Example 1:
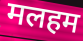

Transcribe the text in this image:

मलहम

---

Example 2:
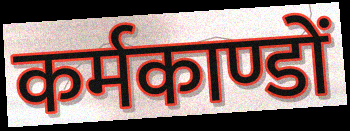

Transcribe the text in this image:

कर्मकाण्डों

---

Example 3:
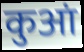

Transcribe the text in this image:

कुआं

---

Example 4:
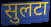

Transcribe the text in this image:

सुलटा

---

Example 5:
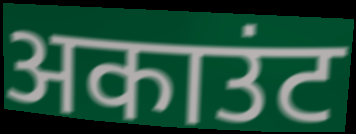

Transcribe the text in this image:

अकाउंट